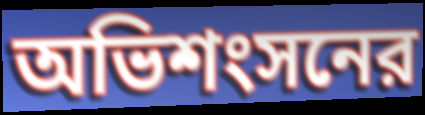
অভিশংসনের